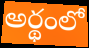
అర్థంలో